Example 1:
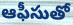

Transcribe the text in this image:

ఆఫీసుతో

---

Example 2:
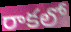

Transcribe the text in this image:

రాకలో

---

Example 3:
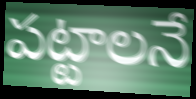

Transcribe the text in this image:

పట్టాలనే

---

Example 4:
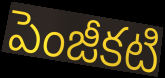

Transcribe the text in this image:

పెంజీకటి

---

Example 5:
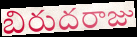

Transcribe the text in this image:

బిరుదరాజు